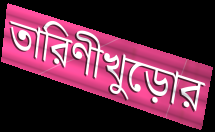
তারিণীখুড়োর